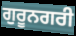
ਗੁਰੂਨਗਰੀ